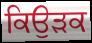
ਕਿਉੜਕ